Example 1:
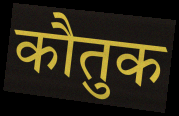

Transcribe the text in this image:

कौतुक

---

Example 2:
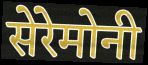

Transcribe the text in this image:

सेरेमोनी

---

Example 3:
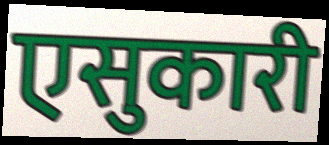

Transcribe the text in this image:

एसुकारी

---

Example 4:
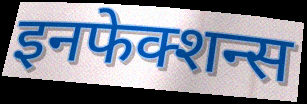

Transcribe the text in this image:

इनफेक्शन्स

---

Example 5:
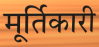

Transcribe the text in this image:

मूर्तिकारी